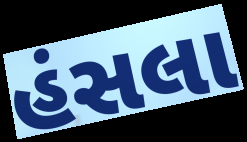
હંસલા